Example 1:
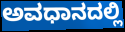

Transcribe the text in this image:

ಅವಧಾನದಲ್ಲಿ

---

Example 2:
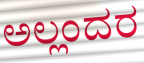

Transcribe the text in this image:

ಅಲ್ಲಂದರ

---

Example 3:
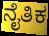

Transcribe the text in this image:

ನೈತಿಕ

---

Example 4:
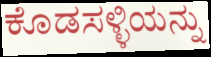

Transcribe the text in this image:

ಕೊಡಸಳ್ಳಿಯನ್ನು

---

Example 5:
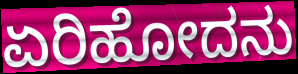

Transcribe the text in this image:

ಏರಿಹೋದನು